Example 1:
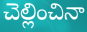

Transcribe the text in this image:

చెల్లించినా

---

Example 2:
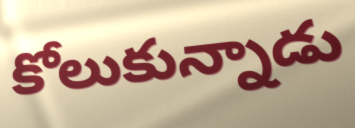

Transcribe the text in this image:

కోలుకున్నాడు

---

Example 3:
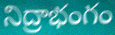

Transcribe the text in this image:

నిద్రాభంగం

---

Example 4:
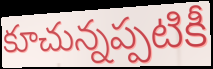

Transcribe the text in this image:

కూచున్నప్పటికీ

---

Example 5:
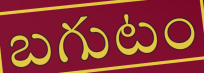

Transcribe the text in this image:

బగుటం